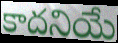
కాదనియే